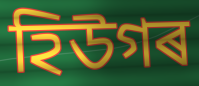
হিউগৰ